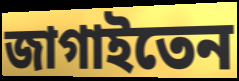
জাগাইতেন